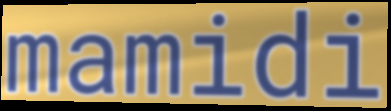
mamidi